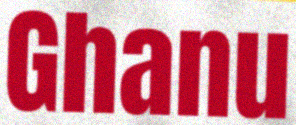
Ghanu